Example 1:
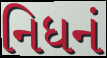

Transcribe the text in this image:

નિધનં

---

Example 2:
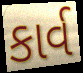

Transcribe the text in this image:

કાર્વ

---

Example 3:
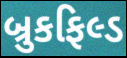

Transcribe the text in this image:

બ્રુકફિલ્ડ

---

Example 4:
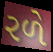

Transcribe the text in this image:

રળે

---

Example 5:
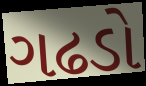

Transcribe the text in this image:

ગઢડો